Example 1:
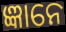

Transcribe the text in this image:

ଜ୍ଞାନେ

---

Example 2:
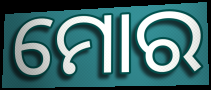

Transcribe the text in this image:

ମୋର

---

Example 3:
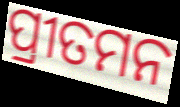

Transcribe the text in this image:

ପ୍ରୀତମନ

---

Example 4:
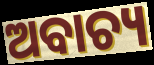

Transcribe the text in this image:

ଅବାଚ୍ୟ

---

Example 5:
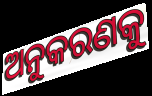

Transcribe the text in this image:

ଅନୁକରଣକୁ